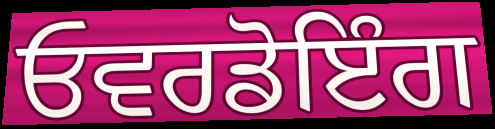
ਓਵਰਡੋਇੰਗ